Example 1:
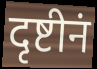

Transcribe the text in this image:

दृष्टीनं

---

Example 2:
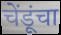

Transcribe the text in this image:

चेंडूंचा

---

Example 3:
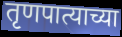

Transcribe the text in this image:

तृणपात्याच्या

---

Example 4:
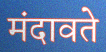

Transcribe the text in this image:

मंदावते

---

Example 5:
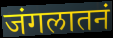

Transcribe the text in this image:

जंगलातनं